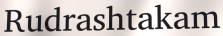
Rudrashtakam